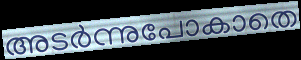
അടർന്നുപോകാതെ